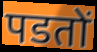
पडतों